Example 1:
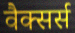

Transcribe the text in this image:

वैक्सर्स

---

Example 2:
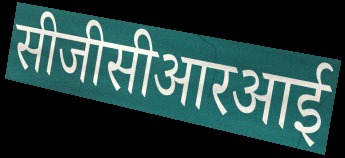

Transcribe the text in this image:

सीजीसीआरआई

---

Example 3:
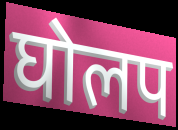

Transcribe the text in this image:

घोलप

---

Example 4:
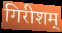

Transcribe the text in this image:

गिरीशम्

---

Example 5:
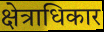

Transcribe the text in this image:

क्षेत्राधिकार